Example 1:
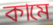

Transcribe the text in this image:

কামে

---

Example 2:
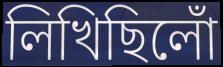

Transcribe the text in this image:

লিখিছিলোঁ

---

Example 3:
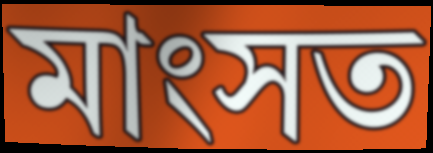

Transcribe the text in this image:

মাংসত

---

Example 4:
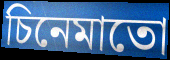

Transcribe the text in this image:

চিনেমাতো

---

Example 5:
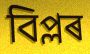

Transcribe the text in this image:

বিপ্লৰ